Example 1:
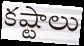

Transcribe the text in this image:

కష్టాలు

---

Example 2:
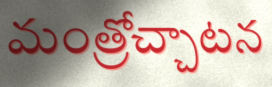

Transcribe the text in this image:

మంత్రోచ్చాటన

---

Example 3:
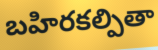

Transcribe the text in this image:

బహిరకల్పితా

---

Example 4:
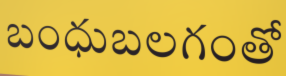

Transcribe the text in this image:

బంధుబలగంతో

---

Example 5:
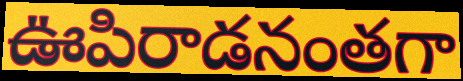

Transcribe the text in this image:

ఊపిరాడనంతగా